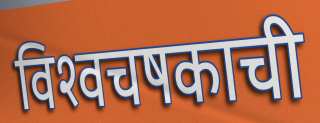
विश्वचषकाची